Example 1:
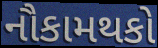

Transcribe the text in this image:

નૌકામથકો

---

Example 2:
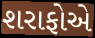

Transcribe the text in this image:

શરાફોએ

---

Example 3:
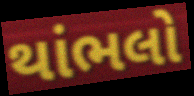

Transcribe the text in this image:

થાંભલો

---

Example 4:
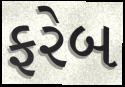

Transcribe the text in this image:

ફરેબ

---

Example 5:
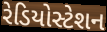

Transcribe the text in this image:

રેડિયોસ્ટેશન